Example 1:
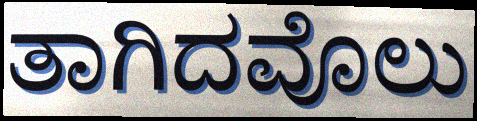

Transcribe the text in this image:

ತಾಗಿದವೊಲು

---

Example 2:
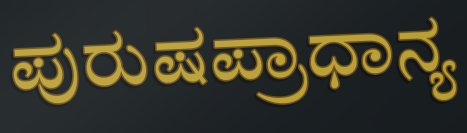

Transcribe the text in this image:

ಪುರುಷಪ್ರಾಧಾನ್ಯ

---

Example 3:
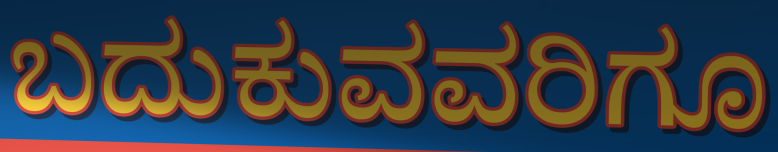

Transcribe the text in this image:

ಬದುಕುವವರಿಗೂ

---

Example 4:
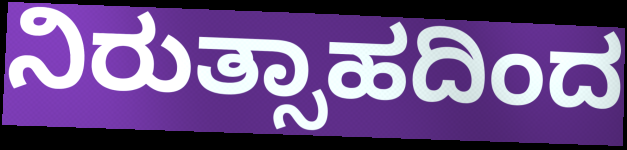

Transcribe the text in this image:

ನಿರುತ್ಸಾಹದಿಂದ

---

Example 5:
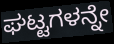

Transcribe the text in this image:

ಘಟ್ಟಗಳನ್ನೇ